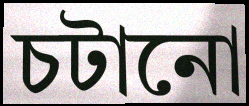
চটানো